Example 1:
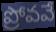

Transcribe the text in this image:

ప్రోవవే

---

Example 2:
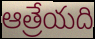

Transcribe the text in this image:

ఆత్రేయది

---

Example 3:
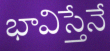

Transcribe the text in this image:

భావిస్తేనే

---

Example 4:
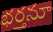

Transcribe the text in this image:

భర్తనూ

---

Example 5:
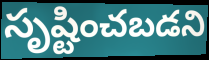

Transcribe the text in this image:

సృష్టించబడని